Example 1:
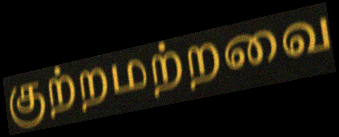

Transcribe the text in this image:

குற்றமற்றவை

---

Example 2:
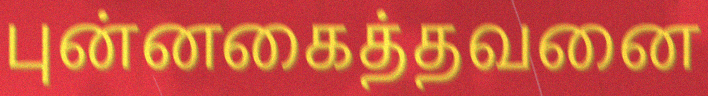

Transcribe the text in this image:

புன்னகைத்தவனை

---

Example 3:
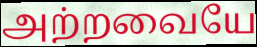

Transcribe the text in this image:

அற்றவையே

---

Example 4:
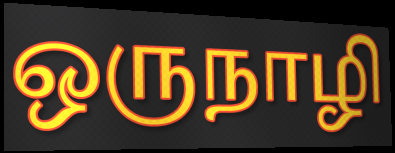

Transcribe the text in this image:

ஒருநாழி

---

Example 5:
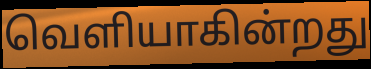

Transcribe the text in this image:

வெளியாகின்றது